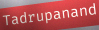
Tadrupanand